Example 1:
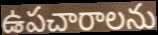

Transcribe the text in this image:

ఉపచారాలను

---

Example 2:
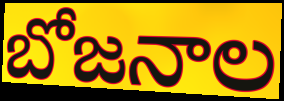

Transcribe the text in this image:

బోజనాల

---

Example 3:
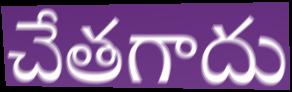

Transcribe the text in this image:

చేతగాదు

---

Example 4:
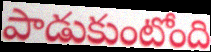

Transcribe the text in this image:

పాడుకుంటోంది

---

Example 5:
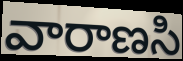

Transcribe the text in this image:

వారాణసి